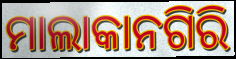
ମାଲାକାନଗିରି